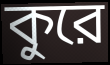
কুরে